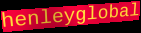
henleyglobal